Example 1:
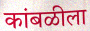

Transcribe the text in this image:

कांबळीला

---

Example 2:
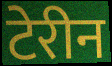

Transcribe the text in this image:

टेरीन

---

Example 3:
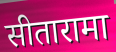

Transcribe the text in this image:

सीतारामा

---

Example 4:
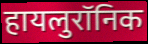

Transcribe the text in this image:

हायलुरॉनिक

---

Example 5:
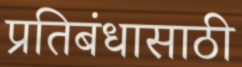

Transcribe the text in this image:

प्रतिबंधासाठी